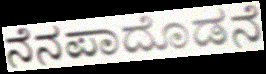
ನೆನಪಾದೊಡನೆ